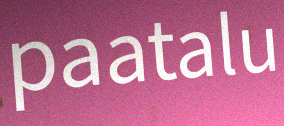
paatalu